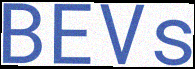
BEVs